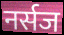
नर्सज